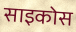
साइकोस